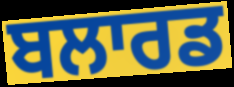
ਬਲਾਰਡ